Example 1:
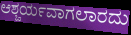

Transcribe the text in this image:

ಆಶ್ಚರ್ಯವಾಗಲಾರದು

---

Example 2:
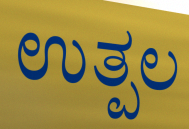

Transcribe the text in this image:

ಉತ್ಪಲ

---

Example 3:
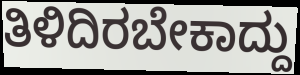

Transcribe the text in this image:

ತಿಳಿದಿರಬೇಕಾದ್ದು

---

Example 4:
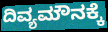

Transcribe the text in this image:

ದಿವ್ಯಮೌನಕ್ಕೆ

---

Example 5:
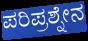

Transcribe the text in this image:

ಪರಿಪ್ರಶ್ನೇನ